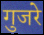
गुजरे